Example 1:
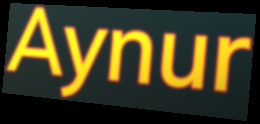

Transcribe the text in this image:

Aynur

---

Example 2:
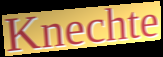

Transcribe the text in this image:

Knechte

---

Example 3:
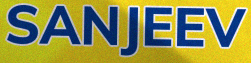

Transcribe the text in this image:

SANJEEV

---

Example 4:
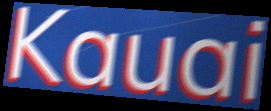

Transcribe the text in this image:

Kauai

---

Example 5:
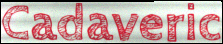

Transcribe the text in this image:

Cadaveric